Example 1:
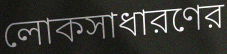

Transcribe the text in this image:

লোকসাধারণের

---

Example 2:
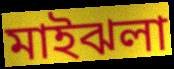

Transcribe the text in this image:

মাইঝলা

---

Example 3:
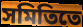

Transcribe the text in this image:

সমিতিতে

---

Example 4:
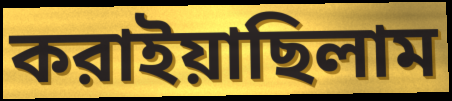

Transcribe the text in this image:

করাইয়াছিলাম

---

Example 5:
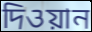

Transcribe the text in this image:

দিওয়ান